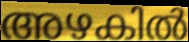
അഴകിൽ